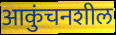
आकुंचनशील